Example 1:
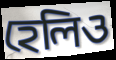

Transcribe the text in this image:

হেলিও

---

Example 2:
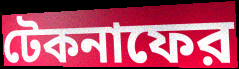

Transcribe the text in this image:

টেকনাফের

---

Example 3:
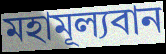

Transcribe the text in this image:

মহামূল্যবান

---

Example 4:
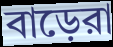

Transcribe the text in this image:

বাড়েরা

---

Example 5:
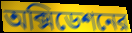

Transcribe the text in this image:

অক্সিডেশনের